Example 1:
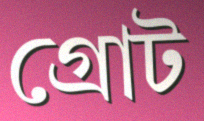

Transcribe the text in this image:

গ্রোট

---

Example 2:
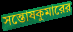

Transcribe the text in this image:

সন্তোষকুমারের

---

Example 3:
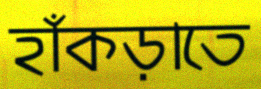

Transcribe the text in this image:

হাঁকড়াতে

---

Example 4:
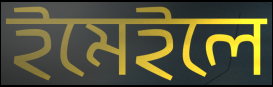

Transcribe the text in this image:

ইমেইলে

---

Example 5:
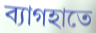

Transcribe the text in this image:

ব্যাগহাতে